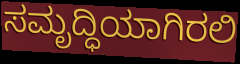
ಸಮೃದ್ಧಿಯಾಗಿರಲಿ